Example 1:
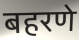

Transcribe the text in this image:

बहरणे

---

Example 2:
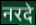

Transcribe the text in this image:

नरदे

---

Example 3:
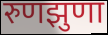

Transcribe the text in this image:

रुणझुणा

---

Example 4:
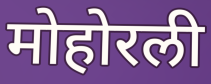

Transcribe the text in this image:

मोहोरली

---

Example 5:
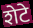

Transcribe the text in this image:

शेटे